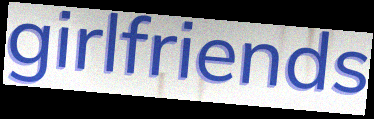
girlfriends